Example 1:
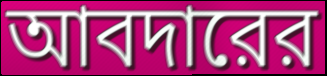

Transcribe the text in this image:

আবদারের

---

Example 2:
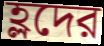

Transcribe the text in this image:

হ্লদের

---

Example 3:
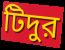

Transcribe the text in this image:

টিদুর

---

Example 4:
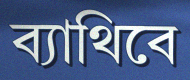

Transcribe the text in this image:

ব্যাথিবে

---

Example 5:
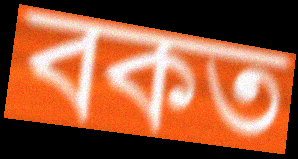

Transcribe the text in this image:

বকত